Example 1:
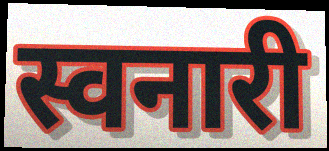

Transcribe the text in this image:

स्वनारी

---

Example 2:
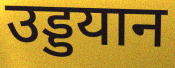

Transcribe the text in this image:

उड्डयान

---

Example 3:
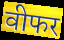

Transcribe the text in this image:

वीफर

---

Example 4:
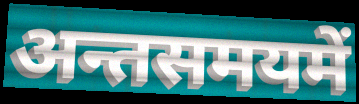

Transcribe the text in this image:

अन्तसमयमें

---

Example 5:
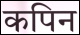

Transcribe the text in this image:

कपिन